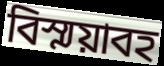
বিস্ময়াবহ